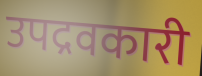
उपद्रवकारी